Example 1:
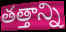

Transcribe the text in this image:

తత్తాన్ని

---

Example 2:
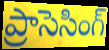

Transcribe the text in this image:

ప్రాసెసింగ్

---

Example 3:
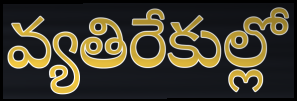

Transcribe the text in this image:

వ్యతిరేకుల్లో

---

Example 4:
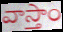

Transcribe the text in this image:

వాస్తాం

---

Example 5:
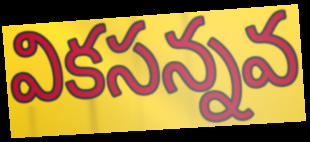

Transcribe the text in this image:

వికసన్నవ